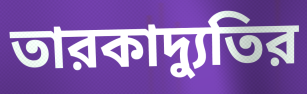
তারকাদ্যুতির